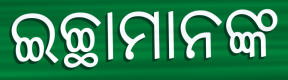
ଇଚ୍ଛାମାନଙ୍କ